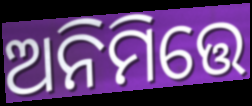
ଅନିମିତ୍ତେ